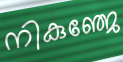
നികുഞ്ജേ